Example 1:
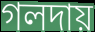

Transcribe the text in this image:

গলদায়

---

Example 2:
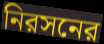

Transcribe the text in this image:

নিরসনের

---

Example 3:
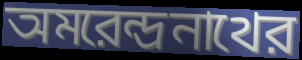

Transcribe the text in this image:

অমরেন্দ্রনাথের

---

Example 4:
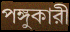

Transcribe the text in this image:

পঙ্গুকারী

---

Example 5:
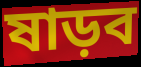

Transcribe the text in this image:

ষাড়ব